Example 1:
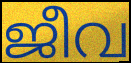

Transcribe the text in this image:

ജീവ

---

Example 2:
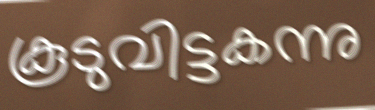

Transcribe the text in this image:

കൂടുവിട്ടകന്നു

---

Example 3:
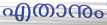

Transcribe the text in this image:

എതാനും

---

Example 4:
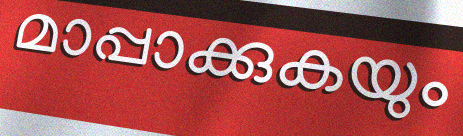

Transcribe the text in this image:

മാപ്പാക്കുകയും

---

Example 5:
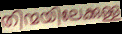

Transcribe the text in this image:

തിന്മയിലേക്കുള്ള